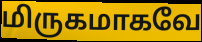
மிருகமாகவே